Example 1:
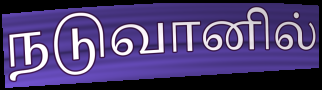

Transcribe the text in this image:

நடுவானில்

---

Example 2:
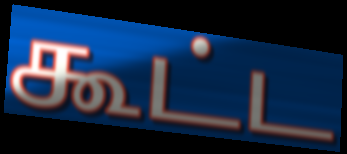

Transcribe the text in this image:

கூட்ட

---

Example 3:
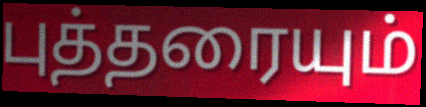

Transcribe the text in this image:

புத்தரையும்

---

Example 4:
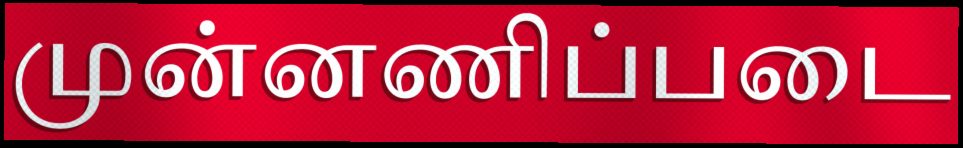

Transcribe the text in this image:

முன்னணிப்படை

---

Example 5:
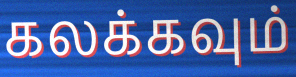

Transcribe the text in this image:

கலக்கவும்